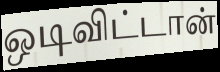
ஒடிவிட்டான்